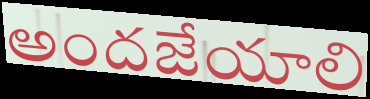
అందజేయాలి